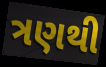
ત્રણથી